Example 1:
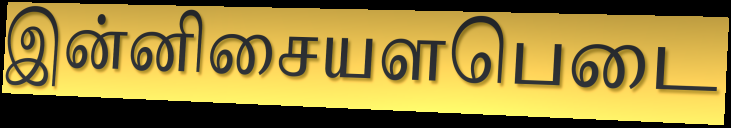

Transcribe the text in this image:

இன்னிசையளபெடை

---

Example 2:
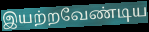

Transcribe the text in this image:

இயற்றவேண்டிய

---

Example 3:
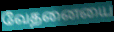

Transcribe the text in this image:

வேதனையை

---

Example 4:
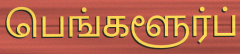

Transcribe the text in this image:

பெங்களூர்ப்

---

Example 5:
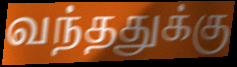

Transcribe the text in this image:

வந்ததுக்கு